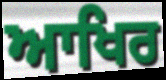
ਆਖਿਰ